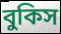
বুকিস